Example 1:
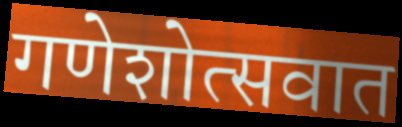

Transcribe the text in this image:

गणेशोत्सवात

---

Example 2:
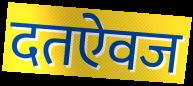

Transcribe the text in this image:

दतऐवज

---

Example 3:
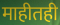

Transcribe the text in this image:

माहीतही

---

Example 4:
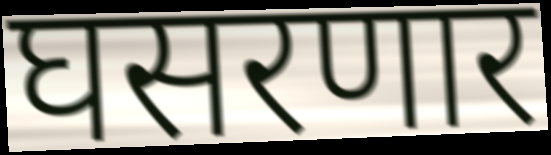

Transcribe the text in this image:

घसरणार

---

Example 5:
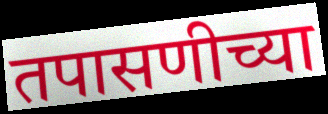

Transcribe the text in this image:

तपासणीच्या